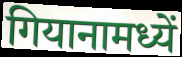
गियानामध्यें